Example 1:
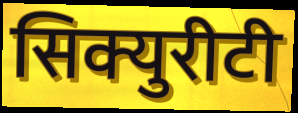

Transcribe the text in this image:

सिक्युरीटी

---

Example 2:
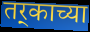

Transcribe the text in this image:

तर्काच्या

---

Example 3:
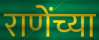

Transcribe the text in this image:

राणेंच्या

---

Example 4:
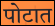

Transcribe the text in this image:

पोटात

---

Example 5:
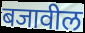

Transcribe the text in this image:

बजावील